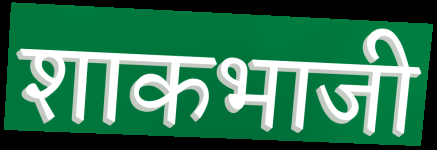
शाकभाजी